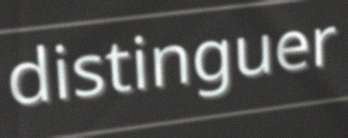
distinguer